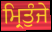
ਮ੍ਰਿਤੁੰਜੇ